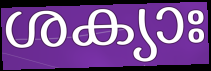
ശക്യാഃ